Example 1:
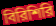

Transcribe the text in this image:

বিরিশিরি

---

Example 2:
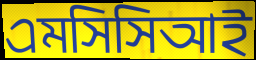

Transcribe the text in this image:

এমসিসিআই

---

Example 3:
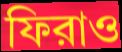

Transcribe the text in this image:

ফিরাও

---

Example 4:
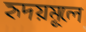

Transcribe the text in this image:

হৃদয়মূলে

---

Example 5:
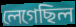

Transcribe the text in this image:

লেগেছিল